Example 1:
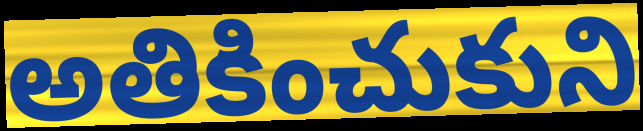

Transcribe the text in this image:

అతికించుకుని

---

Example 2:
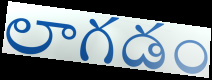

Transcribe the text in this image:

లాగడం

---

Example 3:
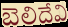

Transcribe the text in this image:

బెలిదేవి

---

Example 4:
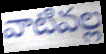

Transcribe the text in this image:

వాటివల్ల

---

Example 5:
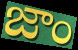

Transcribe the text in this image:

జాం